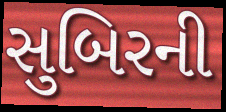
સુબિરની